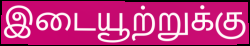
இடையூற்றுக்கு